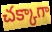
చక్కాగా